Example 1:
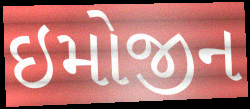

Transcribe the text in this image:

ઇમોજીન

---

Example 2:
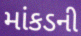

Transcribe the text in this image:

માંકડની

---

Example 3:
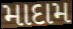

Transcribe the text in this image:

માદામ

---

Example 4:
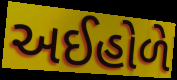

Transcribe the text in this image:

અઈહોળે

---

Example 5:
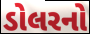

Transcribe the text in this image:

ડોલરનો